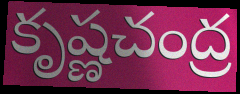
కృష్ణచంద్ర